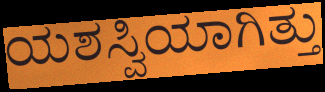
ಯಶಸ್ವಿಯಾಗಿತ್ತು